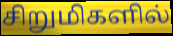
சிறுமிகளில்